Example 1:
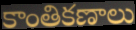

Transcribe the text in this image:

కాంతికణాలు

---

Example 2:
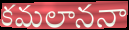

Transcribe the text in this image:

కమలాననా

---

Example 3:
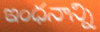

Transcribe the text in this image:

ఇంధనాన్ని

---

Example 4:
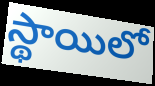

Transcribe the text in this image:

స్థాయిలో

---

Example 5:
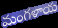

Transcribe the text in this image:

మంగళాయ